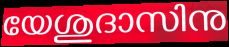
യേശുദാസിനു